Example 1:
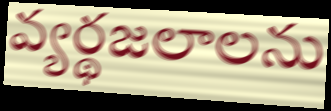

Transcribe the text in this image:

వ్యర్థజలాలను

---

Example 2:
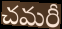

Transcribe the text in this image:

చమరీ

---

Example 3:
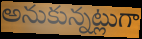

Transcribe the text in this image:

అనుకున్నట్లుగా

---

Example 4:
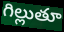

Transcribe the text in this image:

గిల్లుతూ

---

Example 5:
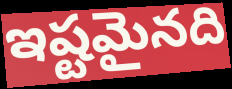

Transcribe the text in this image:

ఇష్టమైనది